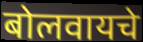
बोलवायचे